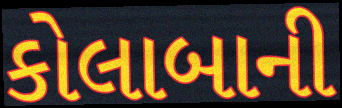
કોલાબાની